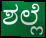
ಶಲ್ಲೆ